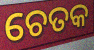
ଚେତକ